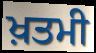
ਖ਼ਤਮੀ